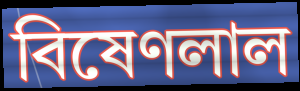
বিষেণলাল